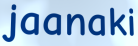
jaanaki